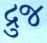
દ્રુજ